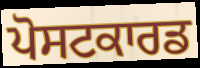
ਪੋਸਟਕਾਰਡ